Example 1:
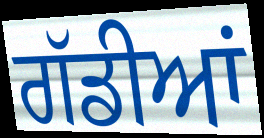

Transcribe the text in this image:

ਗੱਡੀਆਂ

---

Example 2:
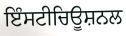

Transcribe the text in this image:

ਇੰਸਟੀਚਿਊਸ਼ਨਲ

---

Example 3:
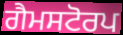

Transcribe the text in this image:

ਗੈਮਸਟੋਰਪ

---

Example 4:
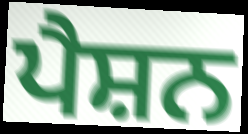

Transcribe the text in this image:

ਪੈਸ਼ਨ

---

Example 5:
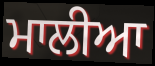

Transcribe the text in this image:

ਮਾਲੀਆ